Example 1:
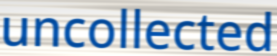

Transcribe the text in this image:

uncollected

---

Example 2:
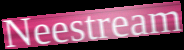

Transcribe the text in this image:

Neestream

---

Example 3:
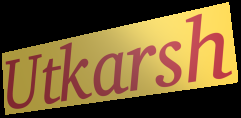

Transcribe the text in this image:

Utkarsh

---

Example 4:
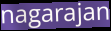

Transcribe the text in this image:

nagarajan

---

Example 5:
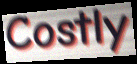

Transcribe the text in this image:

Costly